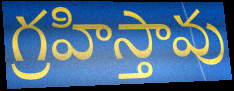
గ్రహిస్తావు